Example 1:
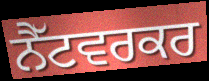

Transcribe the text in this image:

ਨੈੱਟਵਰਕਰ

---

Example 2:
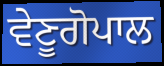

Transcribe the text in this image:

ਵੇਣੂਗੋਪਾਲ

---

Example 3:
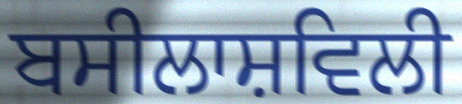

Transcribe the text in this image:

ਬਸੀਲਾਸ਼ਵਿਲੀ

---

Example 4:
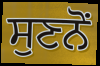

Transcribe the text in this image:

ਸੁਣਨੋਂ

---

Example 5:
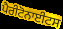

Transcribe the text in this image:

ਪੈਰੀਟੋਨਾਈਟਸ